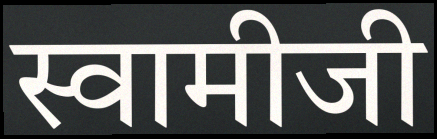
स्वामीजी